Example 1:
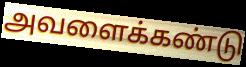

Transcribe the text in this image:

அவளைக்கண்டு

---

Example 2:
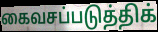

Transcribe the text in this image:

கைவசப்படுத்திக்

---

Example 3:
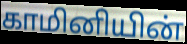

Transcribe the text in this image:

காமினியின்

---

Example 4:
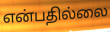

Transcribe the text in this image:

என்பதில்லை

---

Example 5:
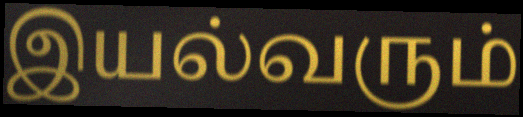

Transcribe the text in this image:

இயல்வரும்